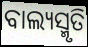
ବାଲ୍ୟସ୍ମୃତି